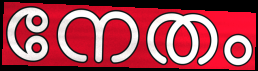
നേതം